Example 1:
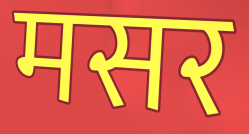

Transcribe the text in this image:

मसर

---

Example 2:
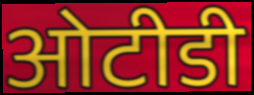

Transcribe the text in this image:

ओटीडी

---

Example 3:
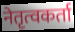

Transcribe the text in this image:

नेतृत्‍वकर्ता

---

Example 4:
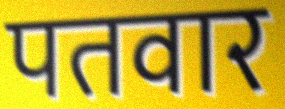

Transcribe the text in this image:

पतवार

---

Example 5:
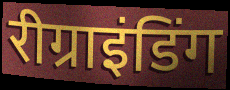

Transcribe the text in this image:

रीग्राइंडिंग